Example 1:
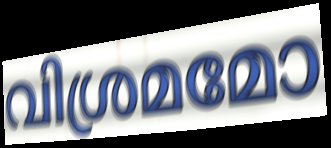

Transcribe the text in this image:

വിശ്രമമോ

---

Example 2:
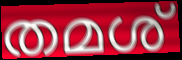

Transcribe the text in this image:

തമശ്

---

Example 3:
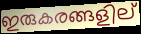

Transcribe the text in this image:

ഇരുകരങ്ങളില്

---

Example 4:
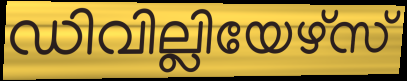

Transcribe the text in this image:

ഡിവില്ലിയേഴ്സ്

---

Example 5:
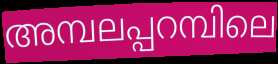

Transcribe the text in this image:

അമ്പലപ്പറമ്പിലെ